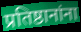
प्रतिष्ठानांना